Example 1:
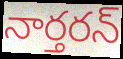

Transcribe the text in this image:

నార్తరన్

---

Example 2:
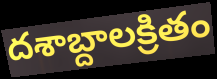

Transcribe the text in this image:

దశాబ్దాలక్రితం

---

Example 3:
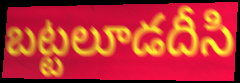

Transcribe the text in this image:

బట్టలూడదీసి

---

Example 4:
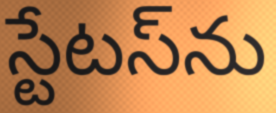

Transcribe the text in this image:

స్టేటస్‌ను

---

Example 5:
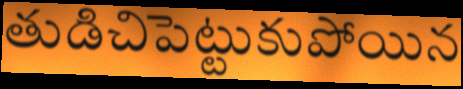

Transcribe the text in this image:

తుడిచిపెట్టుకుపోయిన